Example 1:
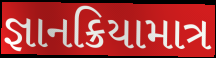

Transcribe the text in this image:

જ્ઞાનક્રિયામાત્ર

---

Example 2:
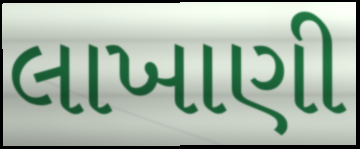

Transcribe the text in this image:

લાખાણી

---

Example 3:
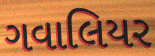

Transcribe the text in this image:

ગવાલિયર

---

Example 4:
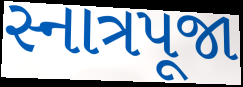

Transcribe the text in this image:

સ્નાત્રપૂજા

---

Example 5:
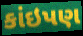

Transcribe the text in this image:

કાંઇપણ